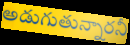
అడుగుతున్నారనీ